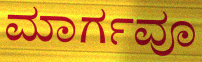
ಮಾರ್ಗವೂ